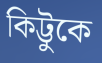
কিট্টুকে